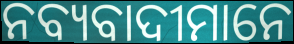
ନବ୍ୟବାଦୀମାନେ